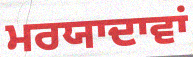
ਮਰਯਾਦਾਵਾਂ